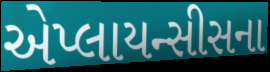
એપ્લાયન્સીસના